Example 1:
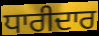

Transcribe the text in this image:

ਧਾਰੀਦਾਰ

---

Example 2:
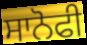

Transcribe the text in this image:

ਸਾਨੋਫੀ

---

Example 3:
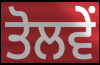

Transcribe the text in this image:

ਤੋਲਵੇਂ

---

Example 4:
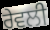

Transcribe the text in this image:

ਰੇਵਲੀ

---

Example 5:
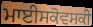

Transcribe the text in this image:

ਮਾਈਸਕੋਵਸਕੀ